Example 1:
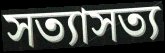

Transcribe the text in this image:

সত্যাসত্য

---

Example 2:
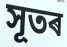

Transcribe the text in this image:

সূতৰ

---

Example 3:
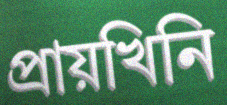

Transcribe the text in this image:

প্ৰায়খিনি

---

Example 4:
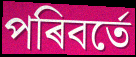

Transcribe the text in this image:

পৰিবৰ্তে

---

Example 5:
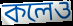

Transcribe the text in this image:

কলেও